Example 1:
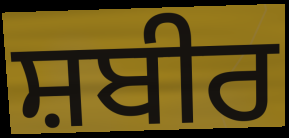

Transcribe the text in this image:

ਸ਼ਬੀਰ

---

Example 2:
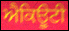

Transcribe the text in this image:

ਐਕਿਊਟੀ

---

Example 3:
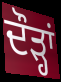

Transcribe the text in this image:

ਦੌੜ੍ਹਾਂ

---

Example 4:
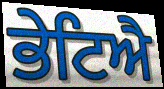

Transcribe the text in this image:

ਭੇਟਿਐ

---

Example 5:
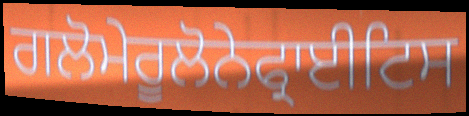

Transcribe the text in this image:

ਗਲੋਮੇਰੂਲੋਨੇਫ੍ਰਾਈਟਿਸ